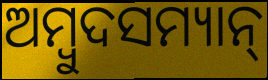
ଅମ୍ୱୁଦସମ୍ୟାନ୍